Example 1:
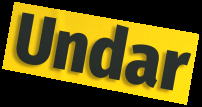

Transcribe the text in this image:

Undar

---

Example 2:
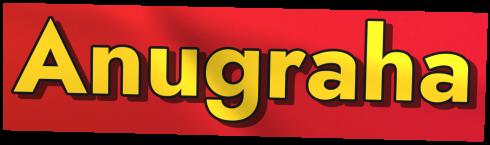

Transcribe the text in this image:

Anugraha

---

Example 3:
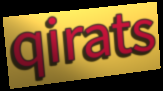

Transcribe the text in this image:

qirats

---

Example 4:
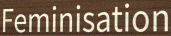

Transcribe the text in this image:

Feminisation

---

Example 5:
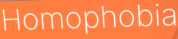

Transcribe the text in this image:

Homophobia